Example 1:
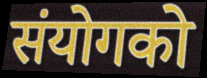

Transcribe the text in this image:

संयोगको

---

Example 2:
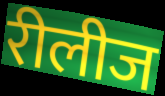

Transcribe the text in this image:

रीलीज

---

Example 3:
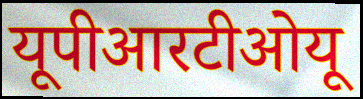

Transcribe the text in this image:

यूपीआरटीओयू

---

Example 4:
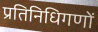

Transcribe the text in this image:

प्रतिनिधिगणों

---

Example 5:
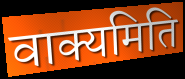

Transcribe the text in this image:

वाक्यमिति